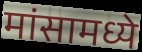
मांसामध्ये